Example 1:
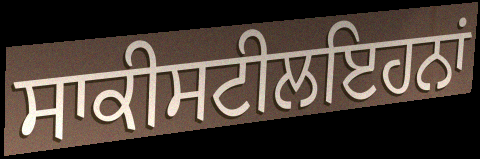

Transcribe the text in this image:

ਸਾਕੀਸਟੀਲਇਹਨਾਂ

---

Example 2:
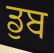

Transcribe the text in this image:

ਡੁਬ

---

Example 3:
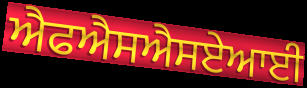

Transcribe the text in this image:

ਐਫਐਸਐਸਏਆਈ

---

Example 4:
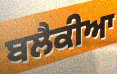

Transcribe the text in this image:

ਬਲੈਕੀਆ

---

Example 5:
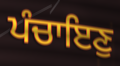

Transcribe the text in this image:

ਪੰਚਾਇਣੁ